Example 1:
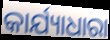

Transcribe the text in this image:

କାର୍ଯ୍ୟାଧାରା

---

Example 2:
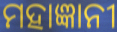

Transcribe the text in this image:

ମହାଜ୍ଞାନୀ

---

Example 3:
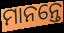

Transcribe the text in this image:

ମାନନ୍ତେ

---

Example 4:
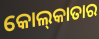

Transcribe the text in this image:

କୋଲ୍‍କାତାର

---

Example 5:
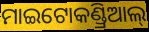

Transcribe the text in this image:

ମାଇଟୋକଣ୍ଡ୍ରିଆଲ୍